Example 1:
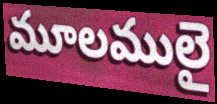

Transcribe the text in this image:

మూలములై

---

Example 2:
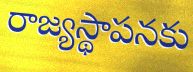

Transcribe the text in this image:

రాజ్యస్థాపనకు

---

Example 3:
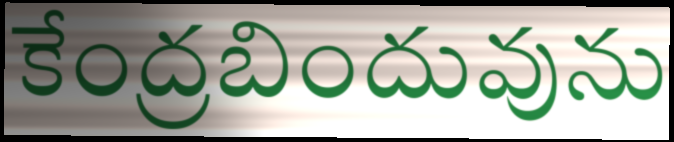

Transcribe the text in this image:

కేంద్రబిందువును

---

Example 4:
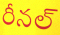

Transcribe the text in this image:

రీనల్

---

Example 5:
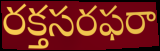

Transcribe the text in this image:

రక్తసరఫరా